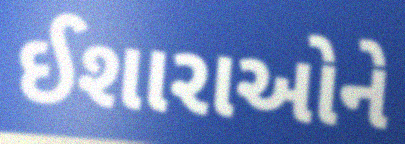
ઈશારાઓને